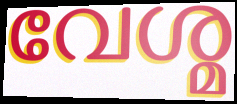
വേശ്മ